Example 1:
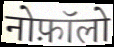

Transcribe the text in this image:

नोफ़ॉलो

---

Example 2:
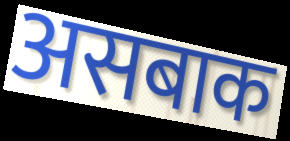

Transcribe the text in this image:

असबाक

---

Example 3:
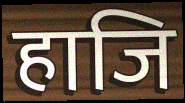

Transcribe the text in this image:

हाजि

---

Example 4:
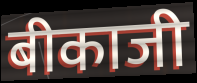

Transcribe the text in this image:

बीकाजी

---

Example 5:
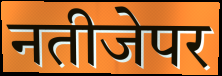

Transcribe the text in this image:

नतीजेपर